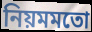
নিয়মমতো